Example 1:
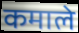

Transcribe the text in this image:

कमाले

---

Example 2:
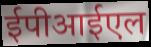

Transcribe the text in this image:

ईपीआईएल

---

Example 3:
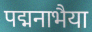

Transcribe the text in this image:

पद्मनाभैया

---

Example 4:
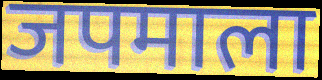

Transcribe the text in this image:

जपमाला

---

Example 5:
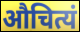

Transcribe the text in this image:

औचित्यं